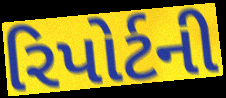
રિપોર્ટની